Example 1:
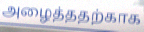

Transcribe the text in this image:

அழைத்ததற்காக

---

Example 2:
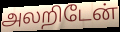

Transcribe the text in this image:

அலறிடேன்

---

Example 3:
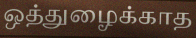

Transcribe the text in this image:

ஒத்துழைக்காத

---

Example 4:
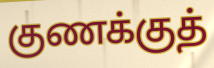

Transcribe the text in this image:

குணக்குத்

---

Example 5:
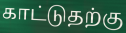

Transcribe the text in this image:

காட்டுதற்கு